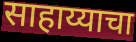
साहाय्याचा